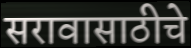
सरावासाठीचे